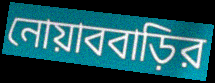
নোয়াববাড়ির